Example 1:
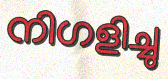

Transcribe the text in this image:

നിഗളിച്ചു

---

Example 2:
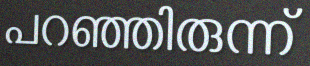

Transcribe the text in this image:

പറഞ്ഞിരുന്ന്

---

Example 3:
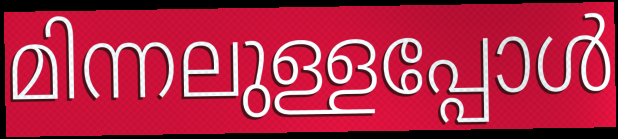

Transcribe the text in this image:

മിന്നലുള്ളപ്പോൾ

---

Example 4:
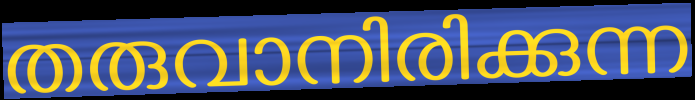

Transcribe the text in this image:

തരുവാനിരിക്കുന്ന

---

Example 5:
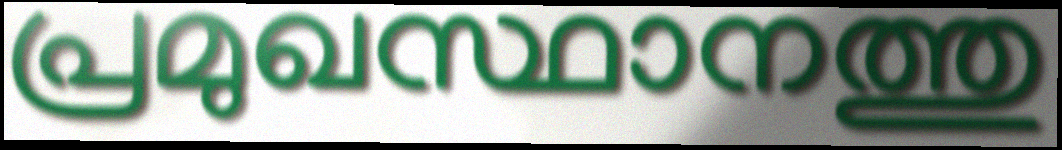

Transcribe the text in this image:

പ്രമുഖസ്ഥാനത്തു